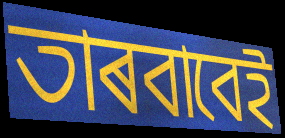
তাৰবাবেই